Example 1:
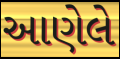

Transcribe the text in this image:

આણેલે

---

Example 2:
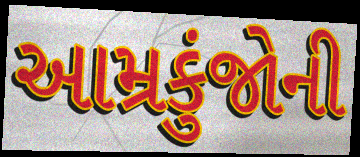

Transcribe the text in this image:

આમ્રકુંજોની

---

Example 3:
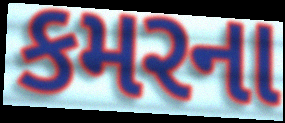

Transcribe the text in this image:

કમરના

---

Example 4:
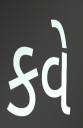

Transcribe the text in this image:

કવે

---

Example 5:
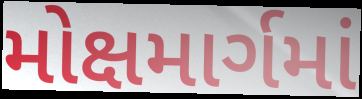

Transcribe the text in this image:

મોક્ષમાર્ગમાં